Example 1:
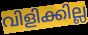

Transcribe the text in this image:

വിളിക്കില്ല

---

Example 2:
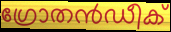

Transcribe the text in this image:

ഗ്രോതൻഡീക്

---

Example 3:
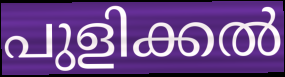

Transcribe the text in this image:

പുളിക്കൽ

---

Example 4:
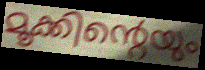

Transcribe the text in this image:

മൂക്കിന്റെയും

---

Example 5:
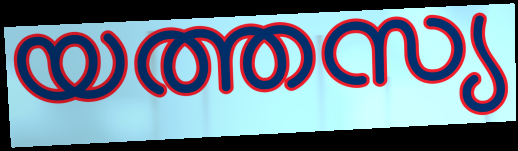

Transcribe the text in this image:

യത്തസ്യ